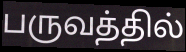
பருவத்தில்